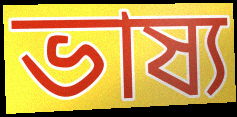
ভাষ্য